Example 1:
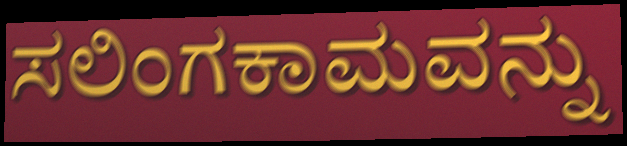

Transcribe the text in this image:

ಸಲಿಂಗಕಾಮವನ್ನು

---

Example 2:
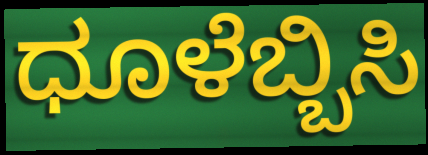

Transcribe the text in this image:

ಧೂಳೆಬ್ಬಿಸಿ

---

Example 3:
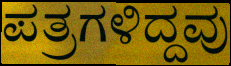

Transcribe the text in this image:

ಪತ್ರಗಳಿದ್ದವು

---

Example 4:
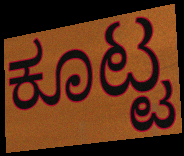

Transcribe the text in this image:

ಕೂಟ್ಟ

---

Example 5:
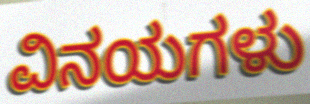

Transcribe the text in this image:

ವಿನಯಗಳು